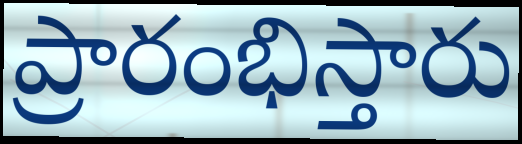
ప్రారంభిస్తారు